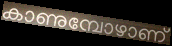
കാണുമ്പോഴാണ്